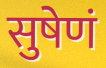
सुषेणं